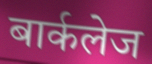
बार्कलेज